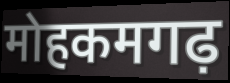
मोहकमगढ़